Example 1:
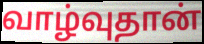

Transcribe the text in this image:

வாழ்வுதான்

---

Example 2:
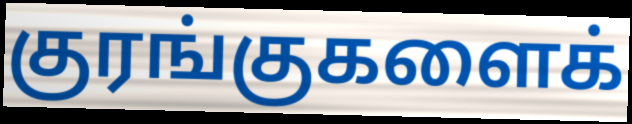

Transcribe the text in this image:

குரங்குகளைக்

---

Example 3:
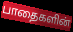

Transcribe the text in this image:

பாதைகளின்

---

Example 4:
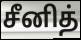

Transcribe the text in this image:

சீனித்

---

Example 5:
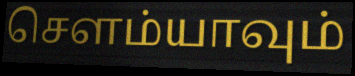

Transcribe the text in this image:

சௌம்யாவும்